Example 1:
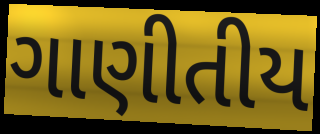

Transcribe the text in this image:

ગાણીતીય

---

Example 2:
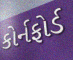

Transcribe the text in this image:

કોર્નફોર્ડ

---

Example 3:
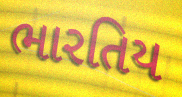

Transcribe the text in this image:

ભારતિય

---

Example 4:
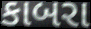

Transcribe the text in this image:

કાબરા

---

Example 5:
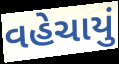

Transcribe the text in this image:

વહેચાયું